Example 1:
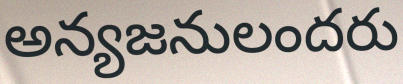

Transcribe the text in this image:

అన్యజనులందరు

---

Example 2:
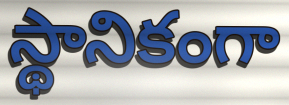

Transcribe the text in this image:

స్థానికంగా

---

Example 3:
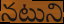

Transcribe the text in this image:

నటుని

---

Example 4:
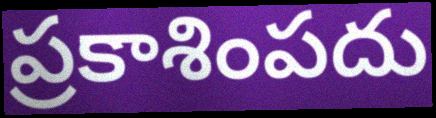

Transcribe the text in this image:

ప్రకాశింపదు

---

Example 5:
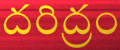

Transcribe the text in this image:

దరిద్రం